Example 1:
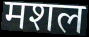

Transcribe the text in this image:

मशल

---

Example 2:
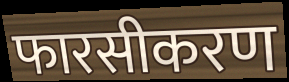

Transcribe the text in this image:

फारसीकरण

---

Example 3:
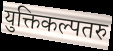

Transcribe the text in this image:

युक्तिकल्पतरु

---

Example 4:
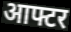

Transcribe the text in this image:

आफ्टर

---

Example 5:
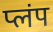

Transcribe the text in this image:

प्लंप